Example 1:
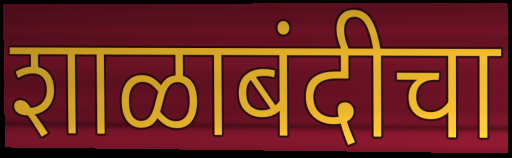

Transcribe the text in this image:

शाळाबंदीचा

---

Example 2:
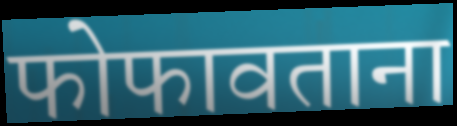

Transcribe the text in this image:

फोफावताना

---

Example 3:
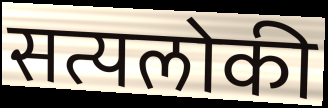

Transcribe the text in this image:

सत्यलोकी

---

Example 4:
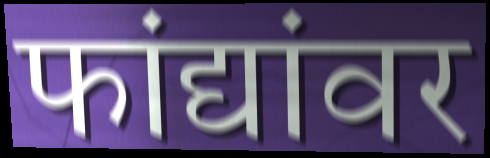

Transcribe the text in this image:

फांद्यांवर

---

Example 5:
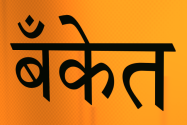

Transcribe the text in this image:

बँकेत